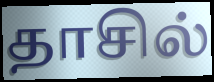
தாசில்